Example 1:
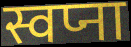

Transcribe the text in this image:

स्‍वप्‍ना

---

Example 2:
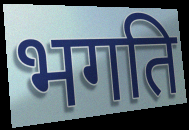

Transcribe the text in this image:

भगति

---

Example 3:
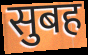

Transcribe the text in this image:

सुबह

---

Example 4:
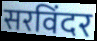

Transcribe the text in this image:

सरविंदर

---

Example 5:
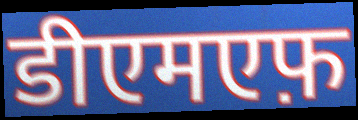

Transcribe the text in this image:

डीएमएफ़